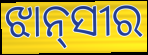
ଝାନ୍‌ସୀର